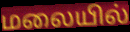
மலையில்